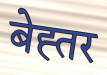
बेह्तर